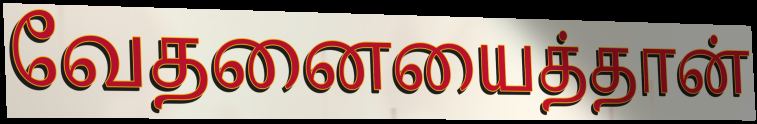
வேதனையைத்தான்